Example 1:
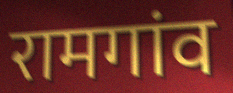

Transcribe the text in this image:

रामगांव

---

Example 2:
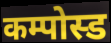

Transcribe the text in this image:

कम्पोस्ड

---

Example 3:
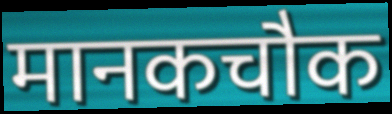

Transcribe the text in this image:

मानकचौक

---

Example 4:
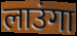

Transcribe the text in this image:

लाउंगा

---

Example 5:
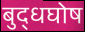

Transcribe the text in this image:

बुद्धघोष